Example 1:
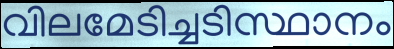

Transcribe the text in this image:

വിലമേടിച്ചടിസ്ഥാനം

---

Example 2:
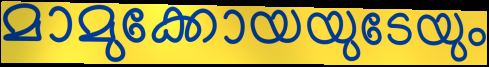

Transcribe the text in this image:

മാമുക്കോയയുടേയും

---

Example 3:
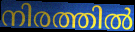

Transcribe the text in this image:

നിരത്തിൽ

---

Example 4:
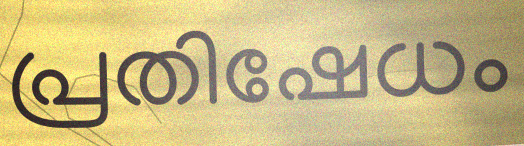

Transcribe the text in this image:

പ്രതിഷേധം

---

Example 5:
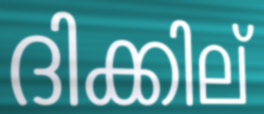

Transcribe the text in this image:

ദിക്കില്